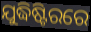
ଯୁଦ୍ଧିଷ୍ଟିରରେ